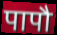
पापौ